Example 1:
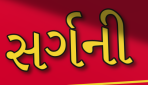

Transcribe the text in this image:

સર્ગની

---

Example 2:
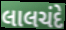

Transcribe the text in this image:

લાલચંદે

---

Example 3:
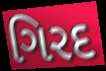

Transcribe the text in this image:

ગિરદ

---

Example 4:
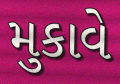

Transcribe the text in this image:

મુકાવે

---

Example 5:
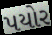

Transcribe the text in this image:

પયોર